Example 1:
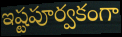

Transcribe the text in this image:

ఇష్టపూర్వకంగా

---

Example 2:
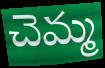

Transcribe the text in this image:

చెమ్మ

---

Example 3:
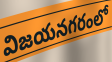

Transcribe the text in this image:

విజయనగరంలో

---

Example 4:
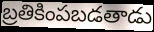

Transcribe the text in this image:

బ్రతికింపబడతాడు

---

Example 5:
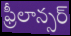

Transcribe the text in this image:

ఫ్రీలాన్సర్